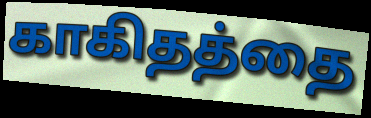
காகிதத்தை